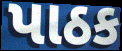
પાઠક